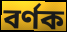
বৰ্ণক